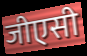
जीएसी